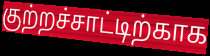
குற்றச்சாட்டிற்காக